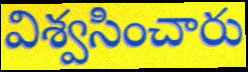
విశ్వసించారు